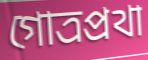
গোত্রপ্রথা